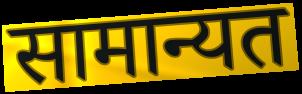
सामान्यत